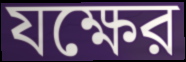
যক্ষের